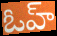
ఓహ్